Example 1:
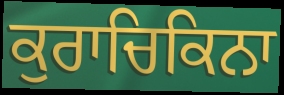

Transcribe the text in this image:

ਕੁਰਾਚਿਕਿਨਾ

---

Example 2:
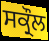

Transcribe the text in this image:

ਸਕ੍ਰੌਲ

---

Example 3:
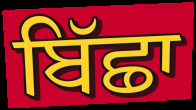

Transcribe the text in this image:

ਬਿੱਛਾ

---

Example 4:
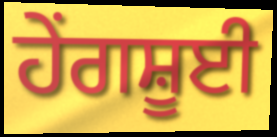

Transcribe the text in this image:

ਹੇਂਗਸ਼ੂਈ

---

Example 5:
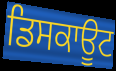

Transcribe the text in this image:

ਡਿਸਕਾਊਟ